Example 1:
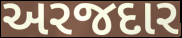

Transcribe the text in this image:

અરજદાર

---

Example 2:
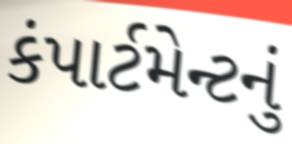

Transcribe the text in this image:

કંપાર્ટમેન્ટનું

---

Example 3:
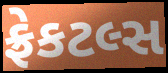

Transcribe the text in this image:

ફ્રેકટલ્સ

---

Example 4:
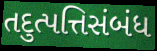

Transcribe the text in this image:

તદુત્પત્તિસંબંધ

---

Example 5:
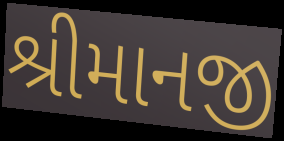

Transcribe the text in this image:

શ્રીમાનજી